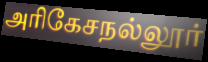
அரிகேசநல்லூர்